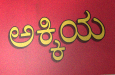
ಅಕ್ಕಿಯ